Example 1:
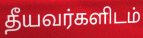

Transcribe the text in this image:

தீயவர்களிடம்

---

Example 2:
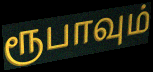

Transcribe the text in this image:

ரூபாவும்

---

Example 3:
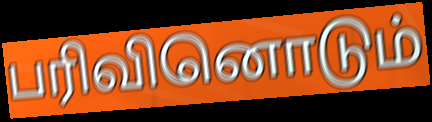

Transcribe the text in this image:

பரிவினொடும்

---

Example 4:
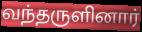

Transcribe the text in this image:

வந்தருளினார்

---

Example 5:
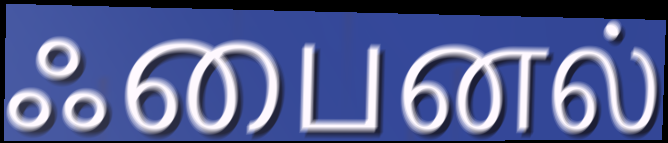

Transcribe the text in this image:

ஃபைனல்